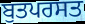
ਬੁਤਪਰਸਤ